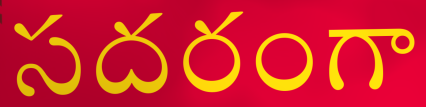
సదరంగా